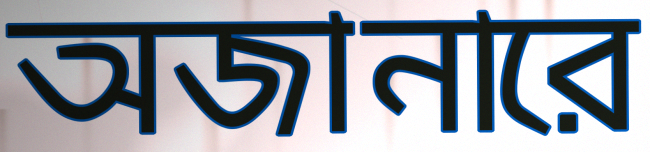
অজানারে